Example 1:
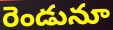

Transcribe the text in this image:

రెండునూ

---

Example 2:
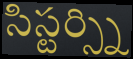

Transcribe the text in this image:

సిస్టర్స్ని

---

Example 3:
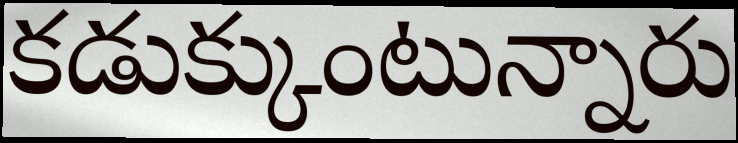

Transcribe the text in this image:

కడుక్కుంటున్నారు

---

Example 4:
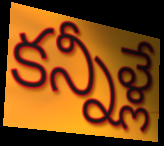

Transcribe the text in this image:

కన్నీళ్లే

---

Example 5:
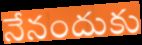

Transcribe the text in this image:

నేనందుకు